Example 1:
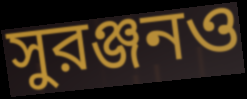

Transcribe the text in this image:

সুরঞ্জনও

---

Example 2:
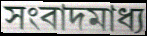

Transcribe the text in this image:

সংবাদমাধ্য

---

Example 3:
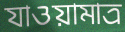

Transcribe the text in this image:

যাওয়ামাত্র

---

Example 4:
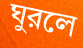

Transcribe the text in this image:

ঘুরলে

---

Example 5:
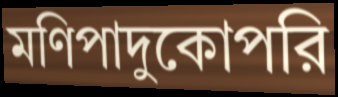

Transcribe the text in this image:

মণিপাদুকোপরি